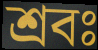
শ্রবঃ